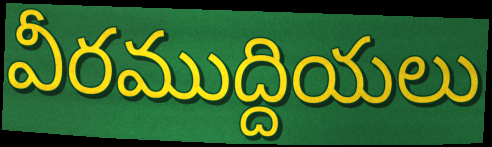
వీరముద్దియలు